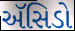
ઍસિડો